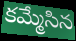
కమ్మేసిన